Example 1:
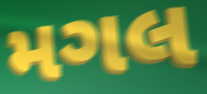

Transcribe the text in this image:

મગલ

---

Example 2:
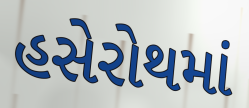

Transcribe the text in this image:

હસેરોથમાં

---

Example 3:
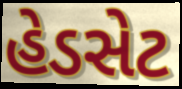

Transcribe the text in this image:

હેડસેટ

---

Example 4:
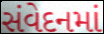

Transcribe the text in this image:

સંવેદનમાં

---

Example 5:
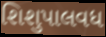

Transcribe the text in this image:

શિશુપાલવધ